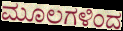
ಮೂಲಗಳಿಂದ